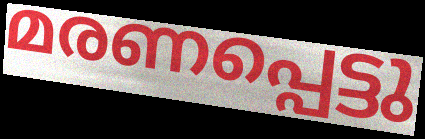
മരണപ്പെട്ടു